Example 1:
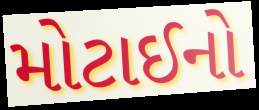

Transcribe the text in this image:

મોટાઈનો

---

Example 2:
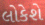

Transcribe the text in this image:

લોકેશે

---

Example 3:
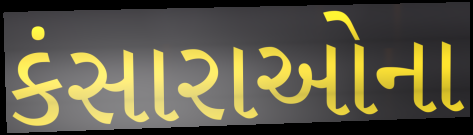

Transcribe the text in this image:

કંસારાઓના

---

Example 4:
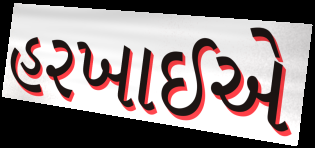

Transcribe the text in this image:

હરખાઈએ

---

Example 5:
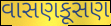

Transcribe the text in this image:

વાસણકૂસણ